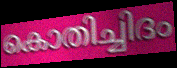
കൊതിച്ചിദം